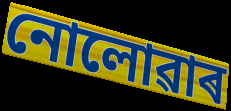
নোলোৱাৰ